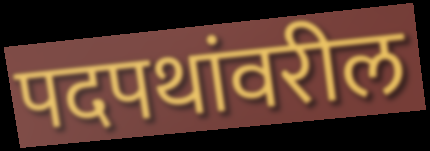
पदपथांवरील